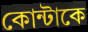
কোন্টাকে